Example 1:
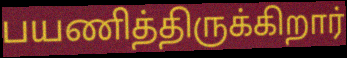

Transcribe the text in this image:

பயணித்திருக்கிறார்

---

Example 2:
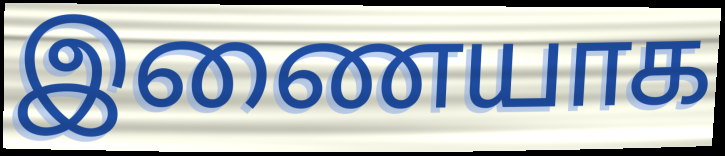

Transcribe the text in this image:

இணையாக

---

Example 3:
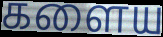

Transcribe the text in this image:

களைய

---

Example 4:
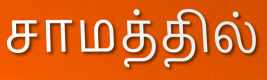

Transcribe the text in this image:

சாமத்தில்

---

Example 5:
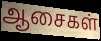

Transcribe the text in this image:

ஆசைகள்